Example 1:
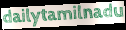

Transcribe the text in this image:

dailytamilnadu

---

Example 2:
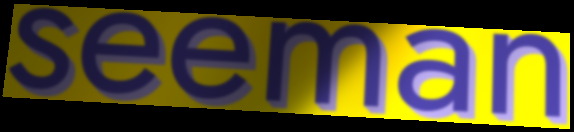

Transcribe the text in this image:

seeman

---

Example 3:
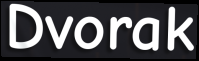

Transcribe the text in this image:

Dvorak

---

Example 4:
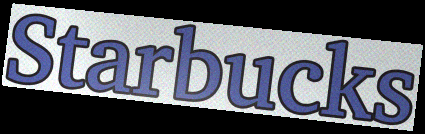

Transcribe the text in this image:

Starbucks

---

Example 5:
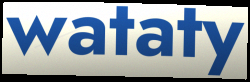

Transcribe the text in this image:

wataty